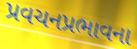
પ્રવચનપ્રભાવના